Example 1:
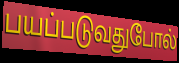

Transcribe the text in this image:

பயப்படுவதுபோல்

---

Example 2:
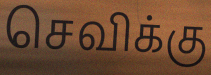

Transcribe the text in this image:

செவிக்கு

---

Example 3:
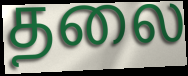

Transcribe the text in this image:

தலை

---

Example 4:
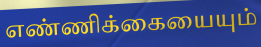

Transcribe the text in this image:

எண்ணிக்கையையும்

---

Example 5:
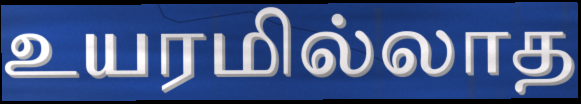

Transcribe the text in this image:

உயரமில்லாத